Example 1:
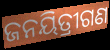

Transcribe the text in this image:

ଜନୟିତ୍ରୀଗଣ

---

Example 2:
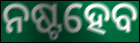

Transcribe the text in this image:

ନଷ୍ଟହେବ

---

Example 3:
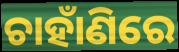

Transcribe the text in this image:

ଚାହାଁଣିରେ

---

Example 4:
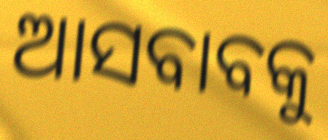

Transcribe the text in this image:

ଆସବାବକୁ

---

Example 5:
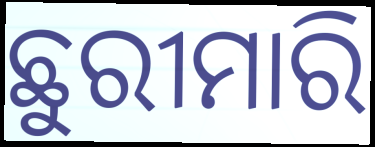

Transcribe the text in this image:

ଛୁରୀମାରି